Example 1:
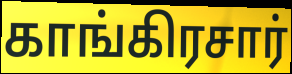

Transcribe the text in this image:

காங்கிரசார்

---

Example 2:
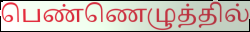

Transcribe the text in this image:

பெண்ணெழுத்தில்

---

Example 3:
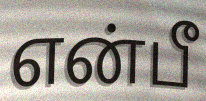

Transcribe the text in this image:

என்பீ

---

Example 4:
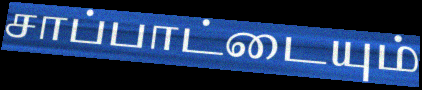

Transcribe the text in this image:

சாப்பாட்டையும்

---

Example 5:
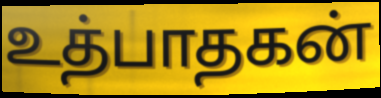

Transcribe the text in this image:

உத்பாதகன்